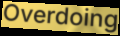
Overdoing